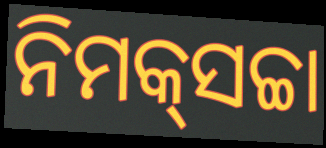
ନିମକ୍‍ସଚ୍ଚା